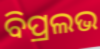
ବିପ୍ରଲଭ